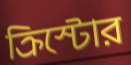
ক্রিস্টোর